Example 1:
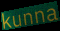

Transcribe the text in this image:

kunna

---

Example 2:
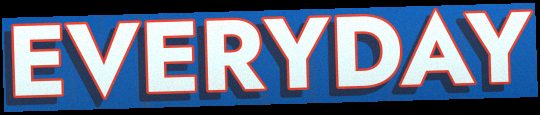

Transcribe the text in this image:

EVERYDAY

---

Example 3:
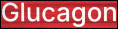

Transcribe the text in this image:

Glucagon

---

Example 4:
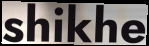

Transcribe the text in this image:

shikhe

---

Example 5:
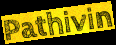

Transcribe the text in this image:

Pathivin